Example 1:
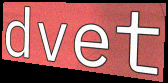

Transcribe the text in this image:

dvet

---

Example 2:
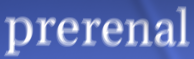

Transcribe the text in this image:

prerenal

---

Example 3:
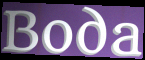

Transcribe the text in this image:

Boda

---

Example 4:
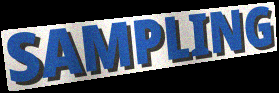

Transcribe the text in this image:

SAMPLING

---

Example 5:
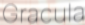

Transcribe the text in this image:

Gracula